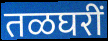
तळघरीं